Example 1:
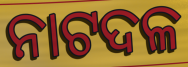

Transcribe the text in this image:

ନାଟଦଳ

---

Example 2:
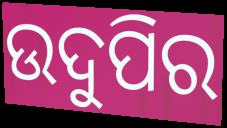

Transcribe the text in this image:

ଉଦୁପିର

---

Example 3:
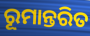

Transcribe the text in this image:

ରୂମାନ୍ତରିତ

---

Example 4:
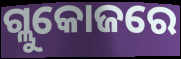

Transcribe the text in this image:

ଗ୍ଲୁକୋଜରେ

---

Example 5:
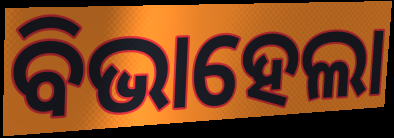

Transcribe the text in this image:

ବିଭାହେଲା